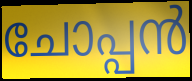
ചോപ്പൻ